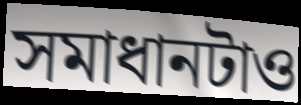
সমাধানটাও